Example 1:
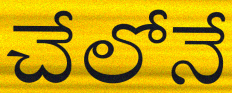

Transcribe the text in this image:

చేలోనే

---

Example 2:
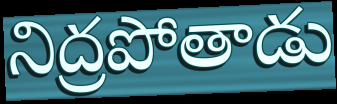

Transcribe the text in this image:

నిద్రపోతాడు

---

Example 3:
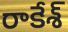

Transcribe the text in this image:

రాకేశ్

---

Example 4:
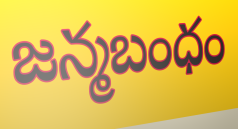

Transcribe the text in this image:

జన్మబంధం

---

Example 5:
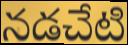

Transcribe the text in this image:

నడచేటి